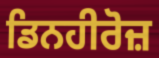
ਡਿਨਹੀਰੋਜ਼